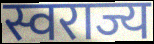
स्वराज्य